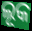
ଲୂକ